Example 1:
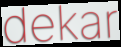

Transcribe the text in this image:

dekar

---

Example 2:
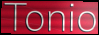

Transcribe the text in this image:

Tonio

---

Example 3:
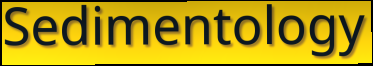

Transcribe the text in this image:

Sedimentology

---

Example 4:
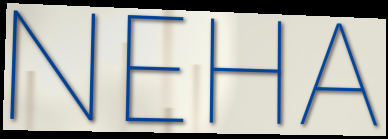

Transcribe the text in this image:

NEHA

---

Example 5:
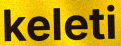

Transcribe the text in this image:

keleti